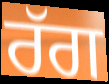
ਰੱਗ